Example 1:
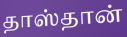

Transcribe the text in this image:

தாஸ்தான்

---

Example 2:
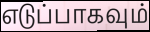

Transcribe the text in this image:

எடுப்பாகவும்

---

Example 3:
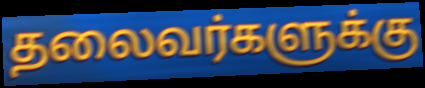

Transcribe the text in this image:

தலைவர்களுக்கு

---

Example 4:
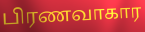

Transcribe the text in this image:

பிரணவாகார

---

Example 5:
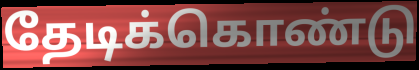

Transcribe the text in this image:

தேடிக்கொண்டு